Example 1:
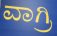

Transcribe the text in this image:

ವಾಗ್ರಿ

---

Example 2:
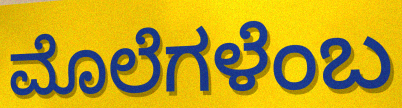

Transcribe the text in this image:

ಮೊಲೆಗಳೆಂಬ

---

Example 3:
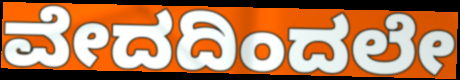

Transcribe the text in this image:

ವೇದದಿಂದಲೇ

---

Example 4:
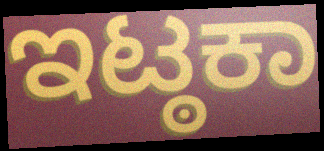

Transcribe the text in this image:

ಇಟ್ಠಕಾ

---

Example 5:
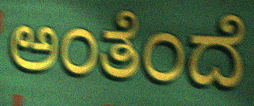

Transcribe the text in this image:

ಅಂತೆಂದೆ